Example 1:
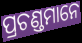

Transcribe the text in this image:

ପ୍ରଚଣ୍ଡମାନେ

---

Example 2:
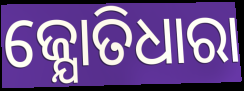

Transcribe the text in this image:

ଜ୍ଯୋତିଧାରା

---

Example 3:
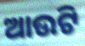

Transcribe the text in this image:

ଆଉଟି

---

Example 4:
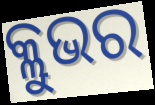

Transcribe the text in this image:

କ୍ଲୁଭର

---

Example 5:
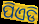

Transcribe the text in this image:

ପିଏଡି